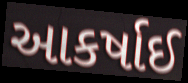
આકર્ષાઈ